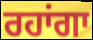
ਰਹਾਂਗਾ